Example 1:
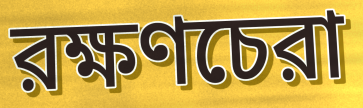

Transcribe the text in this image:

রক্ষণচেরা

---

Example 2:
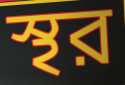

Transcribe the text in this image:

স্থর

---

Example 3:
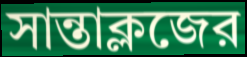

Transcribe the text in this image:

সান্তাক্লজের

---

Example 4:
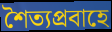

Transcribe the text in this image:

শৈত্যপ্রবাহে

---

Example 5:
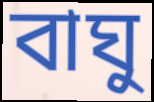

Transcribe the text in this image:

বাঘু